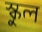
স্কুল